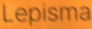
Lepisma